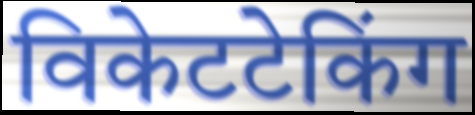
विकेटटेकिंग